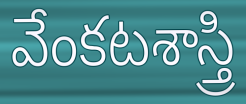
వేంకటశాస్త్రి